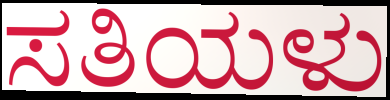
ಸತಿಯಳು